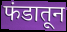
फंडातून